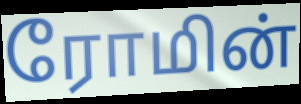
ரோமின்